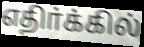
எதிர்க்கில்